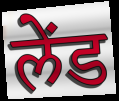
लेंड